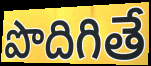
పొదిగితే